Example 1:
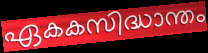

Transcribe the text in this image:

ഏകകസിദ്ധാന്തം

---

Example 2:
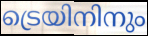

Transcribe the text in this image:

ട്രെയിനിനും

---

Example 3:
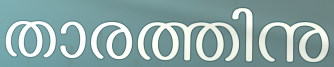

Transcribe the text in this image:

താരത്തിനു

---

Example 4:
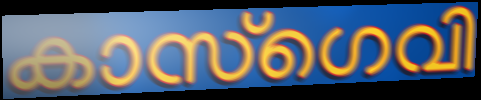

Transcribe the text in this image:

കാസ്ഗെവി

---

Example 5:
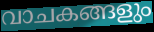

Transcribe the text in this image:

വാചകങ്ങളും